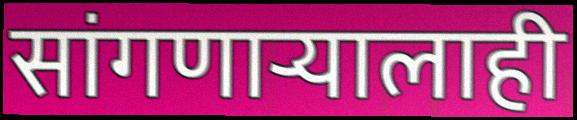
सांगणाऱ्यालाही